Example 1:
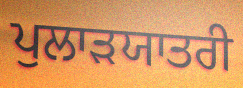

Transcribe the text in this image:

ਪੁਲਾੜਯਾਤਰੀ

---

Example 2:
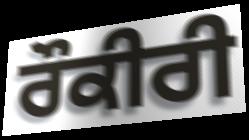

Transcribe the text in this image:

ਰੌਕੀਰੀ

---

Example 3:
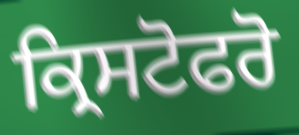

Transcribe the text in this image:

ਕ੍ਰਿਸਟੋਫਰੋ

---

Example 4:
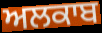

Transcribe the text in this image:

ਅਲਕਾਬ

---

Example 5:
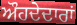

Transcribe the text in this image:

ਔਹਦੇਦਾਰਾਂ